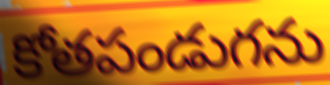
కోతపండుగను